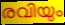
രവിയും